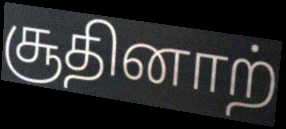
சூதினாற்